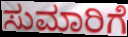
ಸುಮಾರಿಗೆ